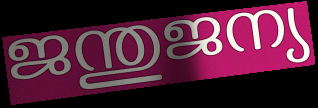
ജന്തുജന്യ